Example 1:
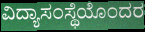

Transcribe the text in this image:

ವಿದ್ಯಾಸಂಸ್ಥೆಯೊಂದರ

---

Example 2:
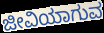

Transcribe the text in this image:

ಜೀವಿಯಾಗುವ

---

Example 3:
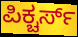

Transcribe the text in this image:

ಪಿಕ್ಚರ್ಸ್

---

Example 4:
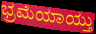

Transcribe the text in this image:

ಭ್ರಮೆಯಾಯ್ತು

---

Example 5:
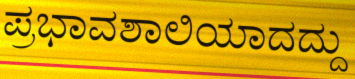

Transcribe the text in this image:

ಪ್ರಭಾವಶಾಲಿಯಾದದ್ದು